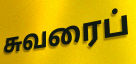
சுவரைப்